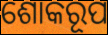
ଶୋକରୂପ